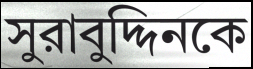
সুরাবুদ্দিনকে